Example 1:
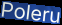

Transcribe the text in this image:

Poleru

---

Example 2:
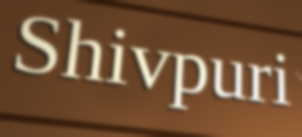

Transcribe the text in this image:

Shivpuri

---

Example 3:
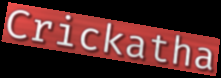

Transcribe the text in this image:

Crickatha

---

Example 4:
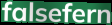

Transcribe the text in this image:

falsefern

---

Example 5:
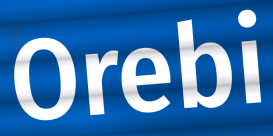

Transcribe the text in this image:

Orebi